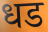
धड